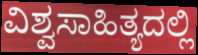
ವಿಶ್ವಸಾಹಿತ್ಯದಲ್ಲಿ